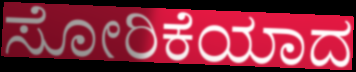
ಸೋರಿಕೆಯಾದ